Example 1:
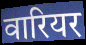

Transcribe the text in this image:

वारियर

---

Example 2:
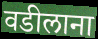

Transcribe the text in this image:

वडीलाना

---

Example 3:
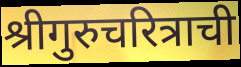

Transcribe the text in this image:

श्रीगुरुचरित्राची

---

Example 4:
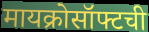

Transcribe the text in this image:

मायक्रोसॉफ्टची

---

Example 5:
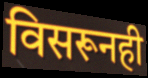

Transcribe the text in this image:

विसरूनही